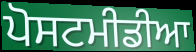
ਪੋਸਟਮੀਡੀਆ